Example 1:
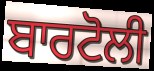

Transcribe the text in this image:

ਬਾਰਟੋਲੀ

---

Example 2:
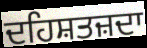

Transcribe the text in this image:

ਦਹਿਸ਼ਤਜ਼ਦਾ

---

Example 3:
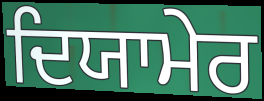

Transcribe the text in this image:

ਦਿਯਾਮੇਰ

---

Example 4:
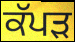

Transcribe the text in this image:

ਕੱਪੜ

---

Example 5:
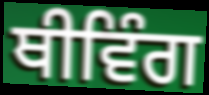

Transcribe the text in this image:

ਥੀਵਿੰਗ